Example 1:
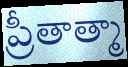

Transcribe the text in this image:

ప్రీతాత్మా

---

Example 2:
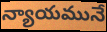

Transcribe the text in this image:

న్యాయమునే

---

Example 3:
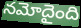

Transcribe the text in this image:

నమోదైంది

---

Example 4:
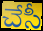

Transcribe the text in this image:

చేసీ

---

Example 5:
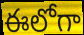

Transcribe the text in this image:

ఈలోగా